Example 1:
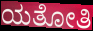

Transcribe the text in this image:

ಯತೋತಿ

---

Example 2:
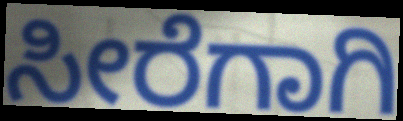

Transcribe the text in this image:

ಸೀರೆಗಾಗಿ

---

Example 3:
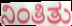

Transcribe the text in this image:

ನಿಂತಿತು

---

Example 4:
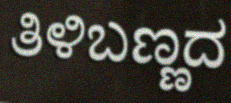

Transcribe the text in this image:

ತಿಳಿಬಣ್ಣದ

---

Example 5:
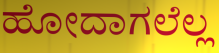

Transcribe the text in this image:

ಹೋದಾಗಲೆಲ್ಲ